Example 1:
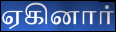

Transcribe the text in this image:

ஏகினார்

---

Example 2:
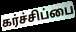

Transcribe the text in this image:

கர்ச்சிப்பை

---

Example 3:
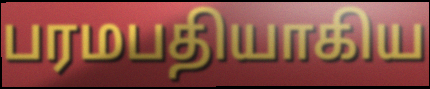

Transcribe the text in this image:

பரமபதியாகிய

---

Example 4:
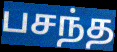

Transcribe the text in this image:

பசந்த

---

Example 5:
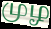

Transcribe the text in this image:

முழ